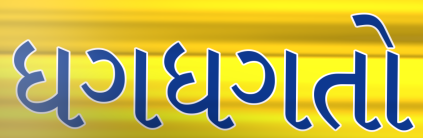
ધગધગતો